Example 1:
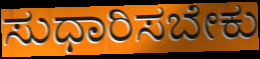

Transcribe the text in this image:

ಸುಧಾರಿಸಬೇಕು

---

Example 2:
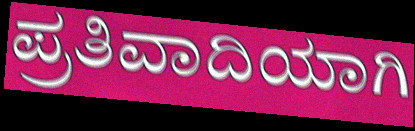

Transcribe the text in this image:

ಪ್ರತಿವಾದಿಯಾಗಿ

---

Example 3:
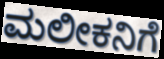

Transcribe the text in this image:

ಮಲೀಕನಿಗೆ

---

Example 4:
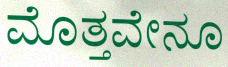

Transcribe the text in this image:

ಮೊತ್ತವೇನೂ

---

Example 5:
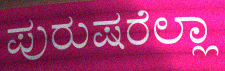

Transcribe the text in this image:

ಪುರುಷರೆಲ್ಲಾ